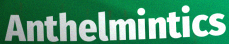
Anthelmintics